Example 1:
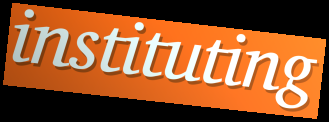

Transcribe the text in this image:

instituting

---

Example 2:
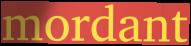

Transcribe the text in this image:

mordant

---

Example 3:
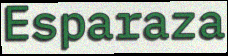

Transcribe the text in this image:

Esparaza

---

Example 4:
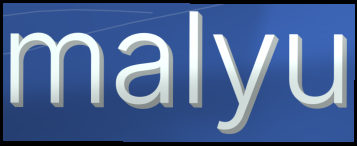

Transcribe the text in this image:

malyu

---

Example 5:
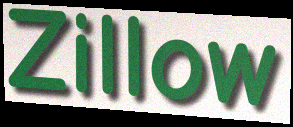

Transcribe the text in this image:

Zillow